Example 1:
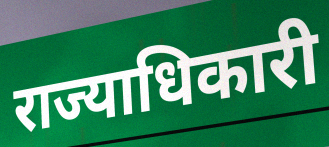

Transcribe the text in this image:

राज्याधिकारी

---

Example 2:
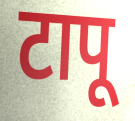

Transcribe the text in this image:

टापू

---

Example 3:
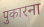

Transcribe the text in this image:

पुकारना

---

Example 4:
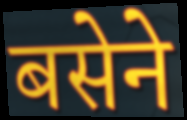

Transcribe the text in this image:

बसेने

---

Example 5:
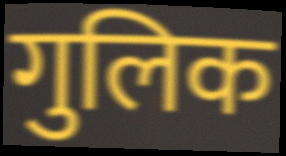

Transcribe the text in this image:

गुलिक